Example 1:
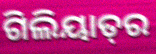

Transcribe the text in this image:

ଗିଲିୟାତ୍‍ର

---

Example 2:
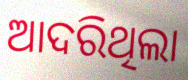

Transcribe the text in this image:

ଆଦରିଥିଲା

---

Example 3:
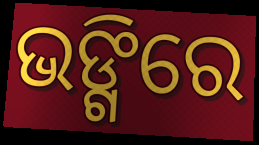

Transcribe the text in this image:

ଭଙ୍ଗିରେ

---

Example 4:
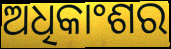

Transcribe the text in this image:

ଅଧିକାଂଶର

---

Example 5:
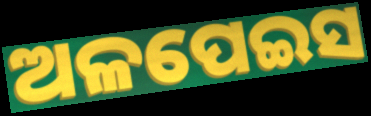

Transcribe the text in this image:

ଅଳପେଇସ